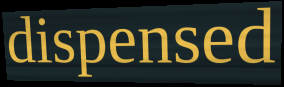
dispensed